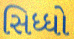
સિધ્ધો